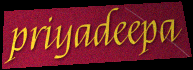
priyadeepa